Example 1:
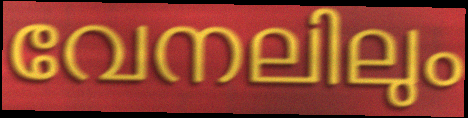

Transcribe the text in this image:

വേനലിലും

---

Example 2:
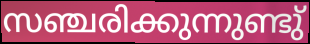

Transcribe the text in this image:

സഞ്ചരിക്കുന്നുണ്ടു്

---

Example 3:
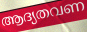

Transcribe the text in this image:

ആദ്യതവണ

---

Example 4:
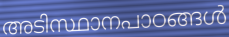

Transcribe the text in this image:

അടിസ്ഥാനപാഠങ്ങൾ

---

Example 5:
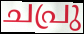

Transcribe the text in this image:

ചപ്രു